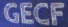
GECF